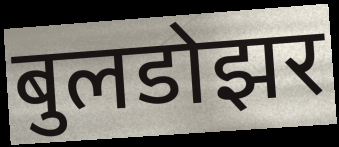
बुलडोझर